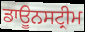
ਡਾਊਨਸਟ੍ਰੀਮ